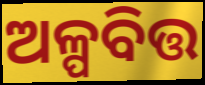
ଅଳ୍ପବିତ୍ତ